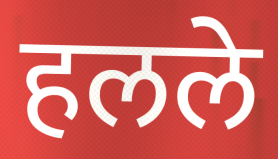
हलले